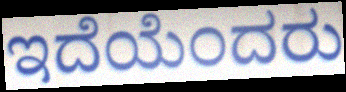
ಇದೆಯೆಂದರು